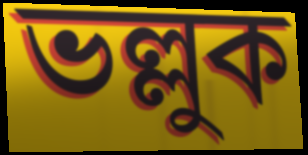
ভল্লুক